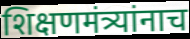
शिक्षणमंत्र्यांनाच